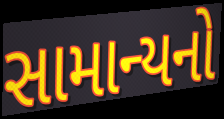
સામાન્યનો